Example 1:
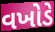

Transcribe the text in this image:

વખોડે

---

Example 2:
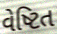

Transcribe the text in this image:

વેષ્ટિત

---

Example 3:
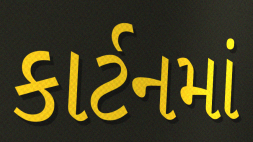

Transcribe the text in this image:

કાર્ટનમાં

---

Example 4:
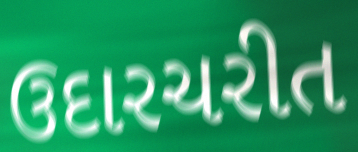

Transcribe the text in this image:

ઉદારચરીત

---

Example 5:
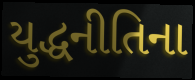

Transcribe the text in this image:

યુદ્ધનીતિના